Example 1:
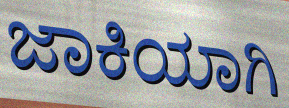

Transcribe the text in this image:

ಜಾಕಿಯಾಗಿ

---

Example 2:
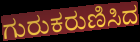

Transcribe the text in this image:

ಗುರುಕರುಣಿಸಿದ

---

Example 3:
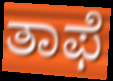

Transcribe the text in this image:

ತಾಫೆ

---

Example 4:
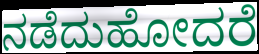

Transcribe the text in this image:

ನಡೆದುಹೋದರೆ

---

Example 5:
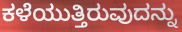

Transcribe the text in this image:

ಕಳೆಯುತ್ತಿರುವುದನ್ನು